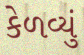
કેળવ્યું